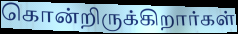
கொன்றிருக்கிறார்கள்